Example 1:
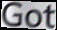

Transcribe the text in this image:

Got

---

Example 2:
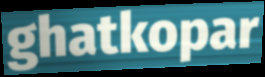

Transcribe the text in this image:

ghatkopar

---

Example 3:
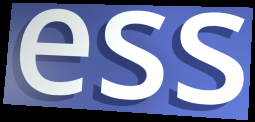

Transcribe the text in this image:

ess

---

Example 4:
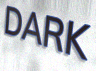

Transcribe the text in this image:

DARK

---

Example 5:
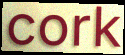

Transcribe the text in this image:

cork